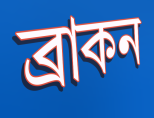
ব্রাকন